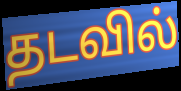
தடவில்